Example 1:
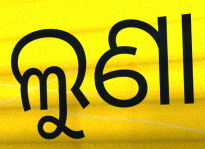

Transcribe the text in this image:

ଲୁଣା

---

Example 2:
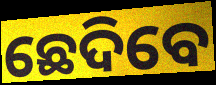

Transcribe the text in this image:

ଛେଦିବେ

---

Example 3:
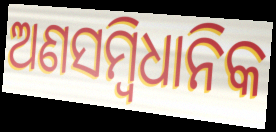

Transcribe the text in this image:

ଅଣସମ୍ବିଧାନିକ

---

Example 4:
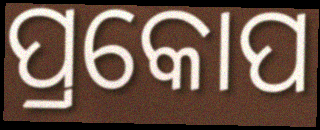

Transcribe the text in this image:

ପ୍ରକୋପ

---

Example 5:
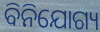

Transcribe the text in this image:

ବିନିଯୋଗ୍ୟ